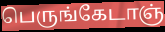
பெருங்கேடாஞ்